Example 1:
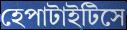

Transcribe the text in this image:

হেপাটাইটিসে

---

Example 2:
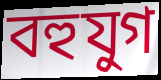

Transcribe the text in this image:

বহুযুগ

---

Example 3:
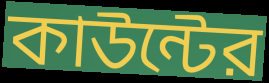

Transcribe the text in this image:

কাউন্টের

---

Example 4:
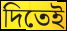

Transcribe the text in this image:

দিতেই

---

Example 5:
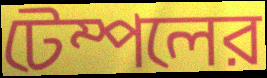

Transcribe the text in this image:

টেম্পলের